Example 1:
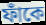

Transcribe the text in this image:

ফাঁকে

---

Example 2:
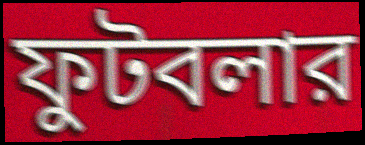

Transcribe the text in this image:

ফুটবলার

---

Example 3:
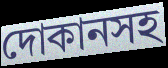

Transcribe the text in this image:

দোকানসহ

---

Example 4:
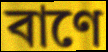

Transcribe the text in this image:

বাণে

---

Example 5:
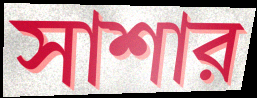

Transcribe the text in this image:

সাশার